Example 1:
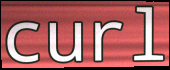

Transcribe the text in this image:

curl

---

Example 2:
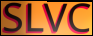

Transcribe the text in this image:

SLVC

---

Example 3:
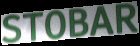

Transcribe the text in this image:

STOBAR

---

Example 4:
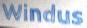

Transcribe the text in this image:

Windus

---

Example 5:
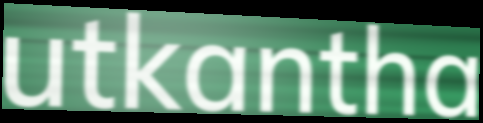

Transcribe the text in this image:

utkantha